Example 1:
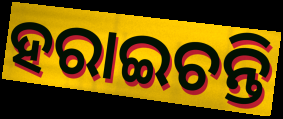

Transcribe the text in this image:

ହରାଇଚନ୍ତି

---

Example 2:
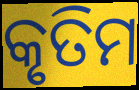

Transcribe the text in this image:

କୃତିମ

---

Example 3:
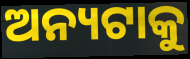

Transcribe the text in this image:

ଅନ୍ୟଟାକୁ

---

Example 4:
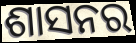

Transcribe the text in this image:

ଶାସନର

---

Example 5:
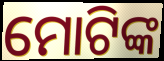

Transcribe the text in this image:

ମୋଟିଙ୍କ